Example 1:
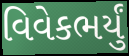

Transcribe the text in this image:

વિવેકભર્યું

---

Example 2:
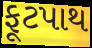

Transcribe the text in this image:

ફૂટપાથ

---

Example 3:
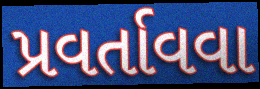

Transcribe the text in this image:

પ્રવર્તાવવા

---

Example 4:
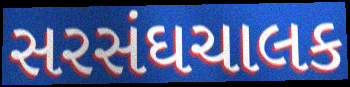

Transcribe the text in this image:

સરસંઘચાલક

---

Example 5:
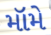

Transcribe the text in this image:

મૉમે